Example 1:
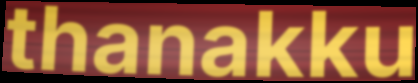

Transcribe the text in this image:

thanakku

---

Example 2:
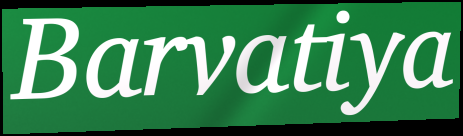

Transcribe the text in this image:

Barvatiya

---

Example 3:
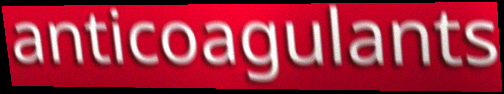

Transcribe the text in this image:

anticoagulants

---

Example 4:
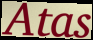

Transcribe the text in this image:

Atas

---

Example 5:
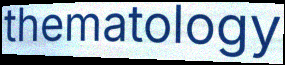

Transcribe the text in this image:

thematology